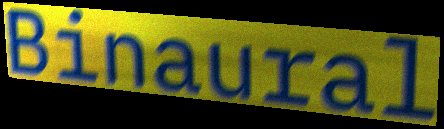
Binaural